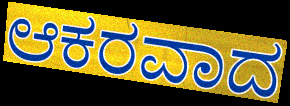
ಆಕರವಾದ